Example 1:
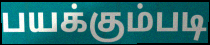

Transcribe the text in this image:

பயக்கும்படி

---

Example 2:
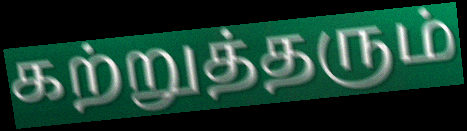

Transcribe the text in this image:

கற்றுத்தரும்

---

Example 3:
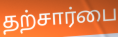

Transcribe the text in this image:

தற்சார்பை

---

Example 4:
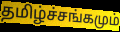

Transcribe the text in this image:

தமிழ்ச்சங்கமும்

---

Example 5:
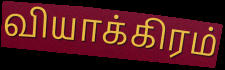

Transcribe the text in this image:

வியாக்கிரம்